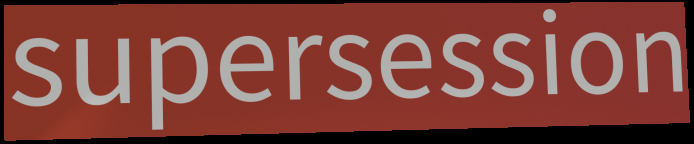
supersession